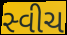
સ્વીચ